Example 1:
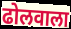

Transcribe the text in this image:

ढोलवाला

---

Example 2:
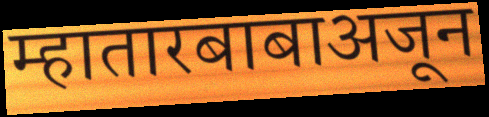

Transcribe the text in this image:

म्हातारबाबाअजून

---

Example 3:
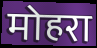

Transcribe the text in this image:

मोहरा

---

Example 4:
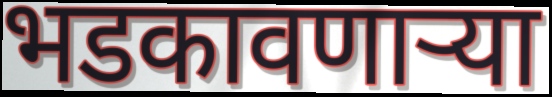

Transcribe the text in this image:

भडकावणाऱ्या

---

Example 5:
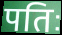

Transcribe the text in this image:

पतिः